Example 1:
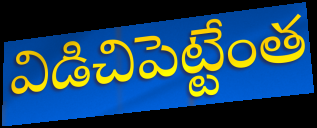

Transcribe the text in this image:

విడిచిపెట్టేంత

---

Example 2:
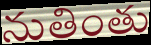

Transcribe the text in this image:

నుతింతు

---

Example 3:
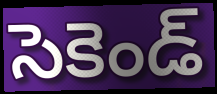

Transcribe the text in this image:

సెకెండ్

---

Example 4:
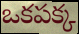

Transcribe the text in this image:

ఒకపక్క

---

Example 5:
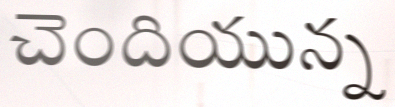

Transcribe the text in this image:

చెందియున్న